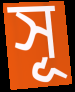
সূ